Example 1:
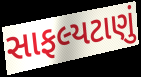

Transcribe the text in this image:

સાફલ્યટાણું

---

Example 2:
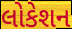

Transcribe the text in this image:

લોકેશન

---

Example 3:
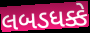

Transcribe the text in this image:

લબડધક્કે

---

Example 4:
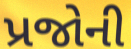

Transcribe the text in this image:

પ્રજોની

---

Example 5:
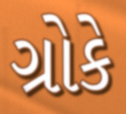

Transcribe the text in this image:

ગ્રોકે